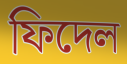
ফিদেল